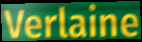
Verlaine